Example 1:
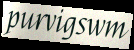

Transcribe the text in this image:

purvigswm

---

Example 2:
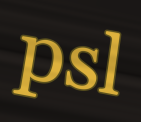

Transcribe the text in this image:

psl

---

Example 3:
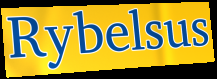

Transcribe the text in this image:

Rybelsus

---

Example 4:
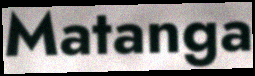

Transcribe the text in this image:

Matanga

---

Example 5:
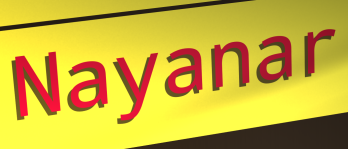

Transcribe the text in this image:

Nayanar